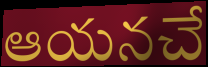
ఆయనచే